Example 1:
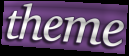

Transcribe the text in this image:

theme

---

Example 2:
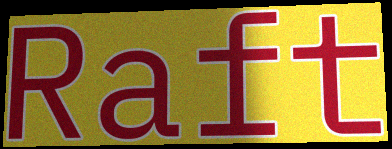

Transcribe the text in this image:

Raft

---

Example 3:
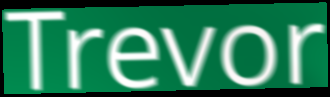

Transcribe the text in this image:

Trevor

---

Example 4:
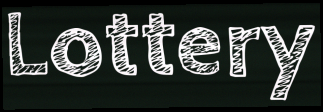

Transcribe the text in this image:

Lottery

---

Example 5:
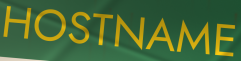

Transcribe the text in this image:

HOSTNAME